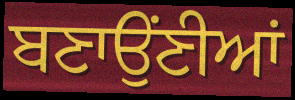
ਬਣਾਉਂਣੀਆਂ